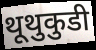
थूथुकुडी